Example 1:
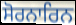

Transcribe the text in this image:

ਸੋਰਨਾਰਿਨ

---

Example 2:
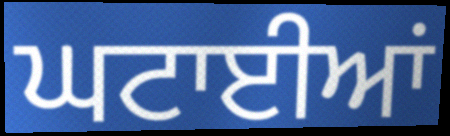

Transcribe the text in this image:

ਘਟਾਈਆਂ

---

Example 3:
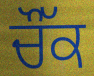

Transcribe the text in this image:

ਚੌੱਕ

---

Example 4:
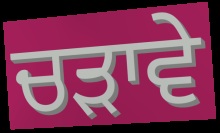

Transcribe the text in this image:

ਚੜਾਵੇ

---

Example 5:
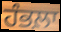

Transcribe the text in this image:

ਹੰਭਲ਼ਾ